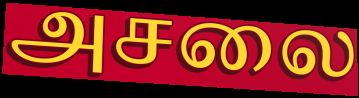
அசலை